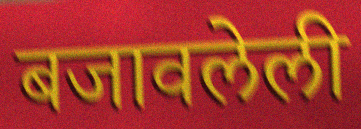
बजावलेली